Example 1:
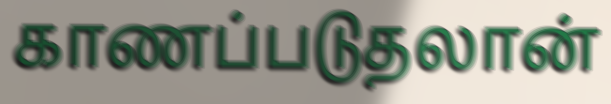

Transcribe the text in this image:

காணப்படுதலான்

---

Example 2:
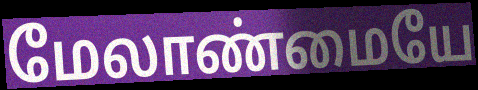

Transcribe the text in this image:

மேலாண்மையே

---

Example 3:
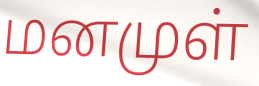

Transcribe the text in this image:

மனமுள்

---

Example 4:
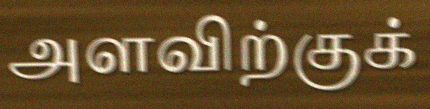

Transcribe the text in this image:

அளவிற்குக்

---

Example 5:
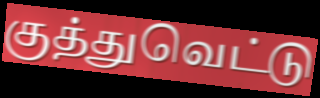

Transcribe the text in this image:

குத்துவெட்டு